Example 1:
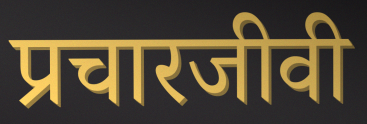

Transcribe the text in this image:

प्रचारजीवी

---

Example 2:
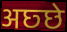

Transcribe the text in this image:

अछ्छे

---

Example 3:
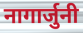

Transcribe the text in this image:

नागार्जुनी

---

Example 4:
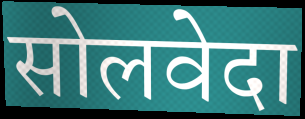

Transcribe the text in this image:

सोलवेदा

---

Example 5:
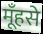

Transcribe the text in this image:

मूँहसे